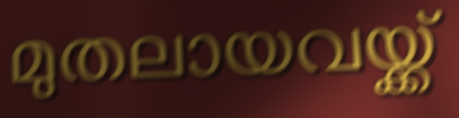
മുതലായവയ്ക്ക്